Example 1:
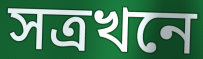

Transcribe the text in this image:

সত্ৰখনে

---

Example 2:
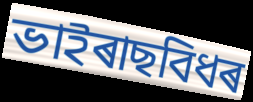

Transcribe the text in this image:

ভাইৰাছবিধৰ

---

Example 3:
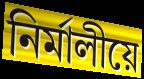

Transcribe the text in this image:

নিৰ্মালীয়ে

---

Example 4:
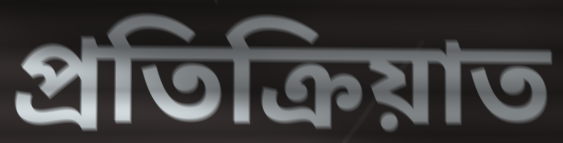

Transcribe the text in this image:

প্ৰতিক্ৰিয়াত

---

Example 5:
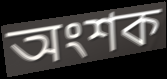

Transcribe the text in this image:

অংশক